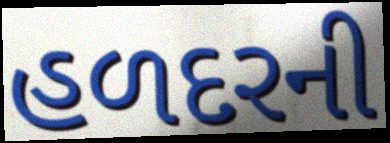
હળદરની